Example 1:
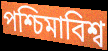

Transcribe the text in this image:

পশ্চিমাবিশ্ব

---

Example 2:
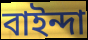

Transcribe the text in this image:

বাইন্দা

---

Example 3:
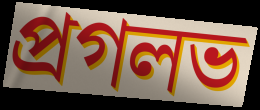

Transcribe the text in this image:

প্রগলভ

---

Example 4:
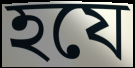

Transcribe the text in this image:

হযে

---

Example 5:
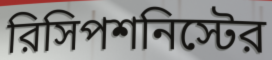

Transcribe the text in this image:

রিসিপশনিস্টের